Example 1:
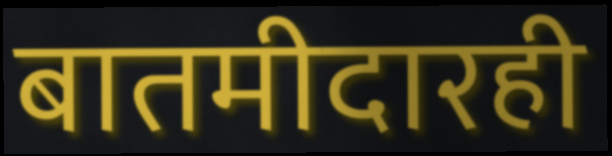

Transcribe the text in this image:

बातमीदारही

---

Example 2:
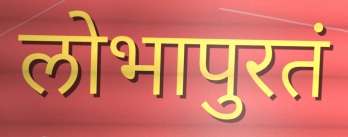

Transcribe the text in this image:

लोभापुरतं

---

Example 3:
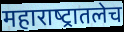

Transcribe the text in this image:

महाराष्ट्रातलेच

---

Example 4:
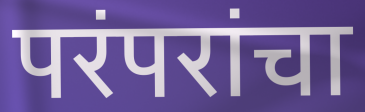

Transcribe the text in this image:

परंपरांचा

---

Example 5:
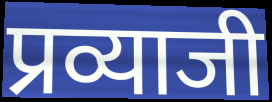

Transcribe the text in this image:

प्रव्याजी